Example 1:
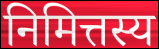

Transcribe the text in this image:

निमित्तस्य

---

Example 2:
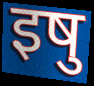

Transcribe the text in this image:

इषु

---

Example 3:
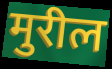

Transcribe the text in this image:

मुरील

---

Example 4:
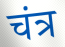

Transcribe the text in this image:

चंत्र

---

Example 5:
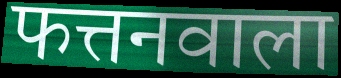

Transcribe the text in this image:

फत्तनवाला